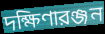
দক্ষিণারঞ্জন